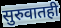
सुरुवातही